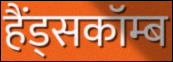
हैंड्सकॉम्ब